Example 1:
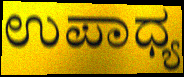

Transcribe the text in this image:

ಉಪಾಧ್ಯ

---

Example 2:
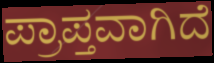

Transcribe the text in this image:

ಪ್ರಾಪ್ತವಾಗಿದೆ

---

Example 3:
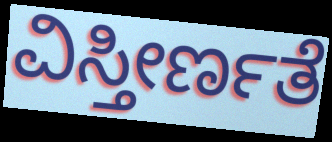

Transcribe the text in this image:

ವಿಸ್ತೀರ್ಣತೆ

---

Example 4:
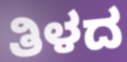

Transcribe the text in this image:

ತಿಳದ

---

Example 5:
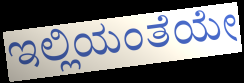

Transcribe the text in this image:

ಇಲ್ಲಿಯಂತೆಯೇ